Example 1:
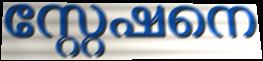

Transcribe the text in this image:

സ്റ്റേഷനെ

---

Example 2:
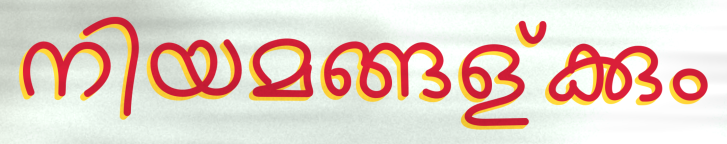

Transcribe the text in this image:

നിയമങ്ങള്ക്കും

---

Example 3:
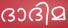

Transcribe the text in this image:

ദാദിമ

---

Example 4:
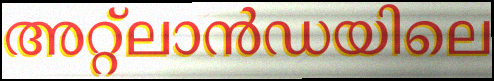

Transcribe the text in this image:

അറ്റ്ലാൻഡയിലെ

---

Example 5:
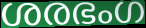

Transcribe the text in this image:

ശരഭംഗ